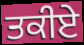
ਤਕੀਏ